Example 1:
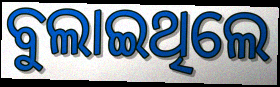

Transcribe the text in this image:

ବୁଲାଇଥିଲେ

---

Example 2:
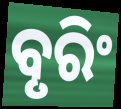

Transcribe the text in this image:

ବୃରିଂ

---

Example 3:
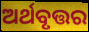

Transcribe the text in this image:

ଅର୍ଥବୃତ୍ତର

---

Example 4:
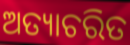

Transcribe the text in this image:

ଅତ୍ୟାଚରିତ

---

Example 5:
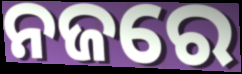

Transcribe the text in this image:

ନଜରେ